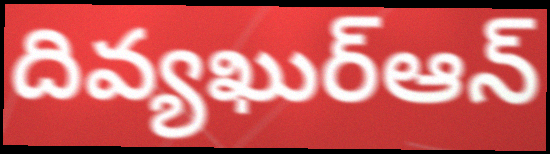
దివ్యఖుర్ఆన్